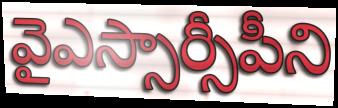
వైఎస్సార్సీపీని